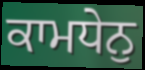
ਕਾਮਧੇਨੁ